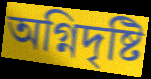
অগ্নিদৃষ্টি